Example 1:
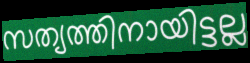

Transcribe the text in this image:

സത്യത്തിനായിട്ടല്ല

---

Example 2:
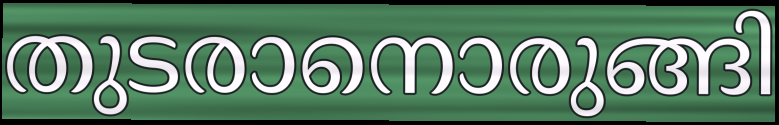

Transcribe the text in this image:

തുടരാനൊരുങ്ങി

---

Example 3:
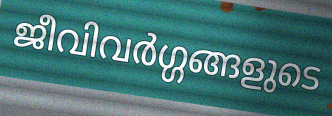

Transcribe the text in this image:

ജീവിവർഗ്ഗങ്ങളുടെ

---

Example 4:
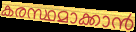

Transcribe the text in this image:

കരസ്ഥമാക്കാൻ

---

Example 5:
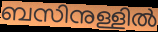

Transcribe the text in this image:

ബസിനുള്ളിൽ